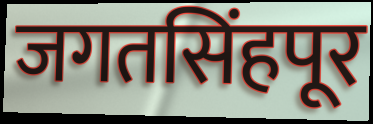
जगतसिंहपूर